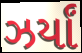
ઝર્યાં